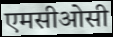
एमसीओसी